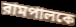
রামপালকে